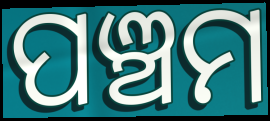
ପଞ୍ଚମ